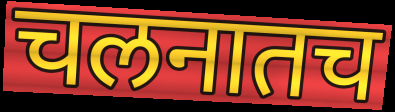
चलनातच